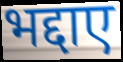
भद्दाए